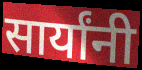
सार्यांनी